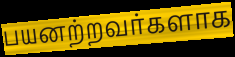
பயனற்றவர்களாக